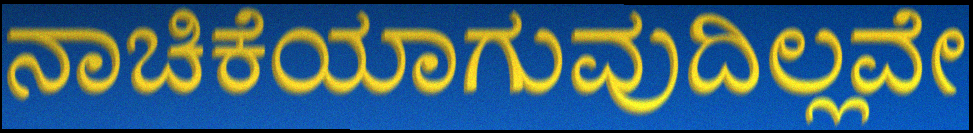
ನಾಚಿಕೆಯಾಗುವುದಿಲ್ಲವೇ